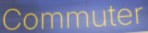
Commuter